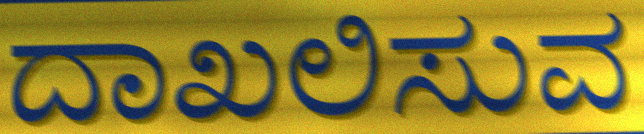
ದಾಖಲಿಸುವ